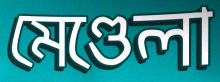
মেণ্ডেলা